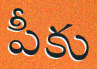
పీకు